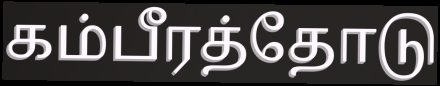
கம்பீரத்தோடு